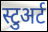
स्टुअर्ट